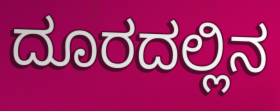
ದೂರದಲ್ಲಿನ